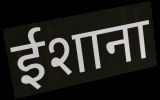
ईशाना